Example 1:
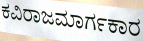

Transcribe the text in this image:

ಕವಿರಾಜಮಾರ್ಗಕಾರ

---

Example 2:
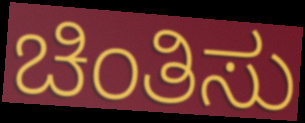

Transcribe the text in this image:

ಚಿಂತಿಸು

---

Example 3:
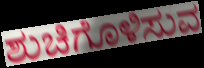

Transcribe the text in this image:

ಶುಚಿಗೊಳಿಸುವ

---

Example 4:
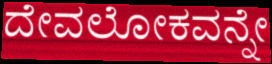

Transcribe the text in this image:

ದೇವಲೋಕವನ್ನೇ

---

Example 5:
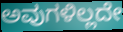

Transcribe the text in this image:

ಅವುಗಳಿಲ್ಲದೇ